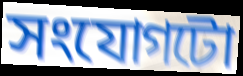
সংযোগটো